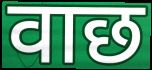
वाछ